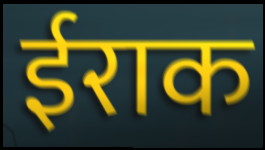
ईराक